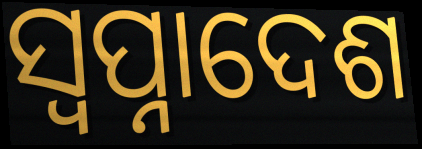
ସ୍ଵପ୍ନାଦେଶ